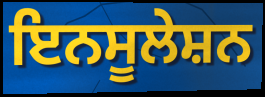
ਇਨਸੂਲੇਸ਼ਨ